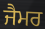
ਜੈਮਰ